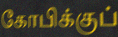
கோபிக்குப்